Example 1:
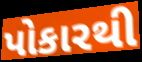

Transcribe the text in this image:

પોકારથી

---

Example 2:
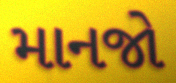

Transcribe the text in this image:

માનજો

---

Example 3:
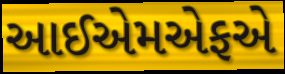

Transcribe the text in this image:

આઈએમએફએ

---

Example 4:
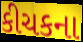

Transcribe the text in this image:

કીચકના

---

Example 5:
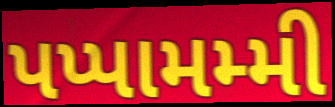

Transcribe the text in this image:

પપ્પામમ્મી